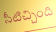
సీటిచ్చింది